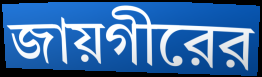
জায়গীরের